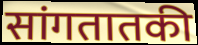
सांगतातकी